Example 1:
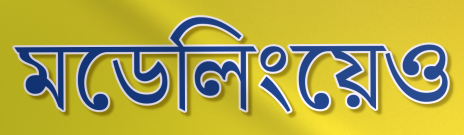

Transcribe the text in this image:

মডেলিংয়েও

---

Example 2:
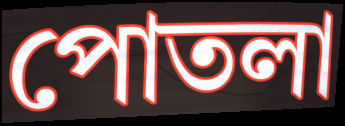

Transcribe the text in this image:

পোতলা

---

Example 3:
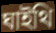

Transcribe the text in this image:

ঘাইথি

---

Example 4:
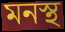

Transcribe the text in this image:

মনস্থ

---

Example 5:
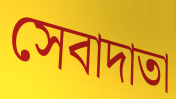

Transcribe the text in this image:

সেবাদাতা